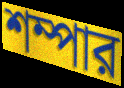
শম্পার